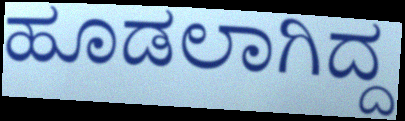
ಹೂಡಲಾಗಿದ್ದ